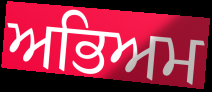
ਅਭਿਅਮ